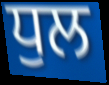
ਧੁਲ